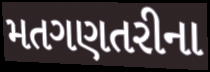
મતગણતરીના